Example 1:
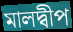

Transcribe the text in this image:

মালদ্বীপ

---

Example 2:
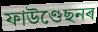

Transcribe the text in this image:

ফাউণ্ডেছনৰ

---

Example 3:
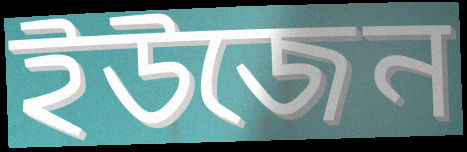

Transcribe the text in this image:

ইউজেন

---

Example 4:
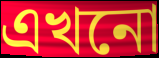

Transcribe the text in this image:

এখনো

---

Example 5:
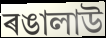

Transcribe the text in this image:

ৰঙালাউ